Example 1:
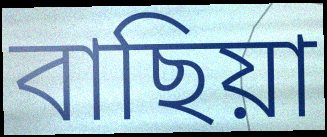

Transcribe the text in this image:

বাছিয়া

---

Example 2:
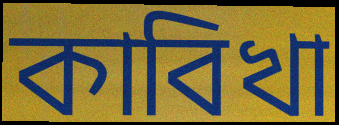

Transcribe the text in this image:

কাবিখা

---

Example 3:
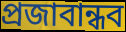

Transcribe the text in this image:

প্রজাবান্ধব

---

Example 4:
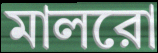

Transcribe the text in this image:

মালরো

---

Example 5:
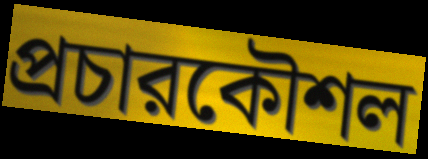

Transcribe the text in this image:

প্রচারকৌশল